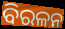
ବିରଳନ